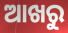
ଆଖରୁ